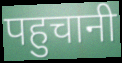
पहुचानी